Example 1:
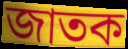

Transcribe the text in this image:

জাতক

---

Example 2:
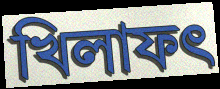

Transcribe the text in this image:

খিলাফৎ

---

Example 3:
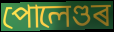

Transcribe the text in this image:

পোলেণ্ডৰ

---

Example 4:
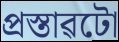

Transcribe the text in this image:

প্ৰস্তাৱটো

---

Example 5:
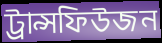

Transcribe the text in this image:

ট্ৰান্সফিউজন